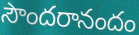
సౌందరానందం